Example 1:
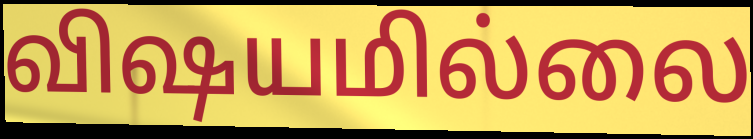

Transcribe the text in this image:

விஷயமில்லை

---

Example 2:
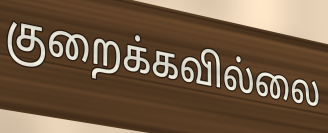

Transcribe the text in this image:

குறைக்கவில்லை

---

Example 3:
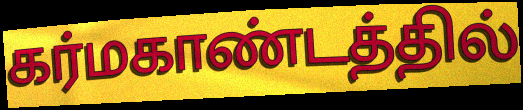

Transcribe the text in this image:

கர்மகாண்டத்தில்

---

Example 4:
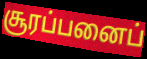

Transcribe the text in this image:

சூரப்பனைப்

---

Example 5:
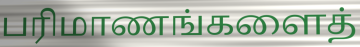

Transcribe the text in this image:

பரிமாணங்களைத்